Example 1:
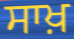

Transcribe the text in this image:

ਸਾਖ਼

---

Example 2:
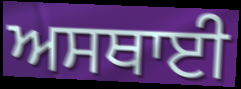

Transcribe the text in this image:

ਅਸਥਾਈ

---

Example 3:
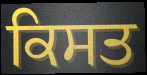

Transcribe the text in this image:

ਕਿਸਤ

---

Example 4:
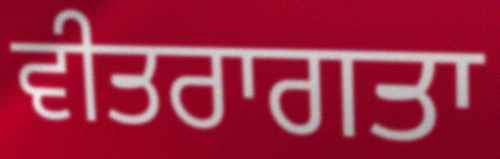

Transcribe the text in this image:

ਵੀਤਰਾਗਤਾ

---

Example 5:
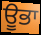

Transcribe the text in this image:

ਊਭਾ